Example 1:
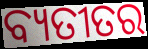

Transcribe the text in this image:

ବ୍ୟତୀତର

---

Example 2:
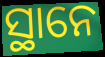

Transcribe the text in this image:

ସ୍ଥାନେ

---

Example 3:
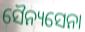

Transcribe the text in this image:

ସୈନ୍ୟସେନା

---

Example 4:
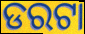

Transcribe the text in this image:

ଡରଟା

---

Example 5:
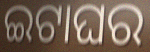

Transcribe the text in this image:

ଇଟାଘର